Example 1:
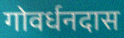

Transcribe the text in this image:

गोवर्धनदास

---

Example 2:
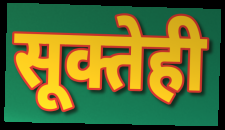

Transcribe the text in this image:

सूक्तेही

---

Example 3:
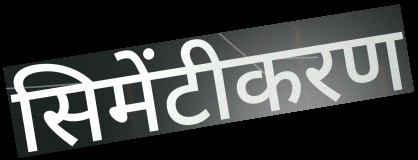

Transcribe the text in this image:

सिमेंटीकरण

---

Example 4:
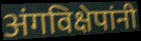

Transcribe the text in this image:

अंगविक्षेपांनी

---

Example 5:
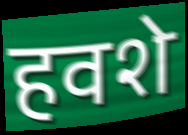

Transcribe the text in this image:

हवशे